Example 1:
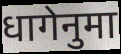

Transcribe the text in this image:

धागेनुमा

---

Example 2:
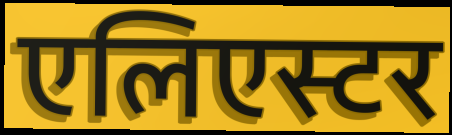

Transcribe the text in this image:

एलिएस्टर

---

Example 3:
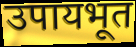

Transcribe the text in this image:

उपायभूत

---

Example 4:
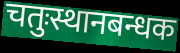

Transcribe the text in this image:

चतुःस्थानबन्धक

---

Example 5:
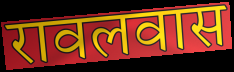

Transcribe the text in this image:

रावलवास